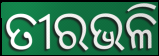
ତୀରଭଳି